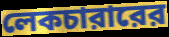
লেকচারারের